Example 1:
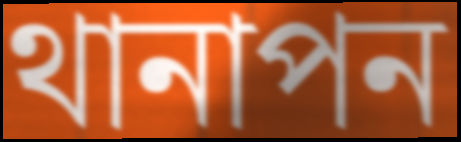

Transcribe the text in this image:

থানাপন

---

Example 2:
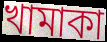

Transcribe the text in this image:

খামাকা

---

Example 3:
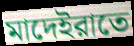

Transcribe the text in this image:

মাদেইরাতে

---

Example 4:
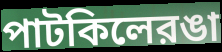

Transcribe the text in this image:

পাটকিলেরঙা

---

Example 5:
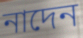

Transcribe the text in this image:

নাদেন